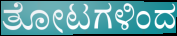
ತೋಟಗಳಿಂದ